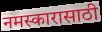
नमस्कारासाठी